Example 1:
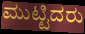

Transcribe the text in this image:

ಮುಟ್ಟಿದರು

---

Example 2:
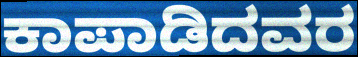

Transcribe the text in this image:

ಕಾಪಾಡಿದವರ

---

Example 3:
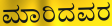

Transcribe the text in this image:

ಮಾರಿದವರ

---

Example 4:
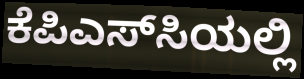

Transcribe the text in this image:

ಕೆಪಿಎಸ್‌ಸಿಯಲ್ಲಿ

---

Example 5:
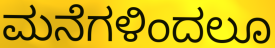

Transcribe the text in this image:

ಮನೆಗಳಿಂದಲೂ